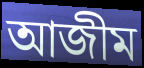
আজীম